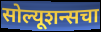
सोल्यूशन्सचा